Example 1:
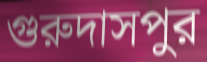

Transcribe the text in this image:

গুরুদাসপুর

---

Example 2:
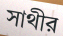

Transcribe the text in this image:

সাথীর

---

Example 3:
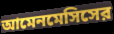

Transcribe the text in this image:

আমেনমেসিসের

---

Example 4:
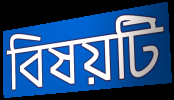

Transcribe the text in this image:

বিষয়টি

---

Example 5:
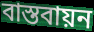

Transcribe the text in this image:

বাস্তবায়ন